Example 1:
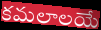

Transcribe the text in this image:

కమలాలయే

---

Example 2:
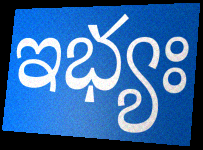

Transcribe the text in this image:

ఇభ్యః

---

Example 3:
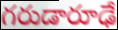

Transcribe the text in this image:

గరుడారూఢే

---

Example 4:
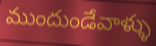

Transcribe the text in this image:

ముందుండేవాళ్ళు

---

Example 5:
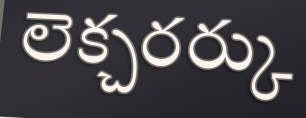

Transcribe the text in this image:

లెక్చరర్కు